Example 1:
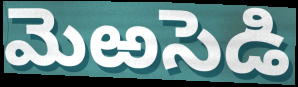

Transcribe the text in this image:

మెఱసెడి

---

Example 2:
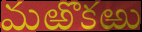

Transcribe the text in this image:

మఱొకఱు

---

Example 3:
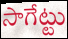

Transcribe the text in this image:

సాగేట్టు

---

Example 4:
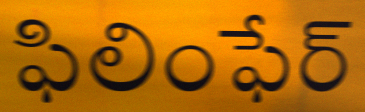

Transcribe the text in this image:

ఫిలింఫేర్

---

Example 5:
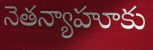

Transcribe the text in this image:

నెతన్యాహూకు